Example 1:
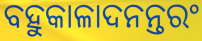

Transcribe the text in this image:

ବହୁକାଳାଦନନ୍ତରଂ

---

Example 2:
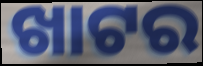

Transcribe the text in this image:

ଖାଟର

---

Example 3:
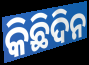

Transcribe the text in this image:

କିଛିଦିନ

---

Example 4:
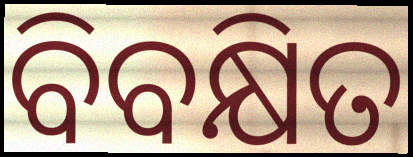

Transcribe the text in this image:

ବିବକ୍ଷିତ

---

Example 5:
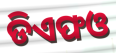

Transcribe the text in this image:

ଡିଏଫଓ